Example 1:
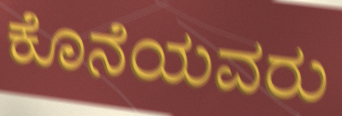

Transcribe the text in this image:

ಕೊನೆಯವರು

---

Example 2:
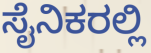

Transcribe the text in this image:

ಸೈನಿಕರಲ್ಲಿ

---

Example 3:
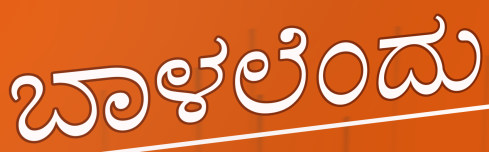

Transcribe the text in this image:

ಬಾಳಲೆಂದು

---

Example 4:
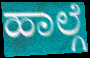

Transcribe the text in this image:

ಹಾಲ್ಗೆ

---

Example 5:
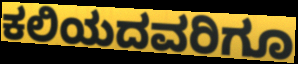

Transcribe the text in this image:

ಕಲಿಯದವರಿಗೂ